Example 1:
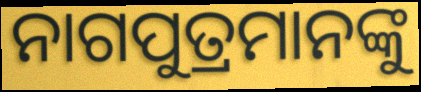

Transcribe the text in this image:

ନାଗପୁତ୍ରମାନଙ୍କୁ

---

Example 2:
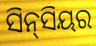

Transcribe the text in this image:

ସିନ୍‌ସିୟର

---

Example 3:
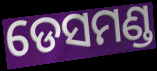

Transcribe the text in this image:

ଡେସମଣ୍ଡ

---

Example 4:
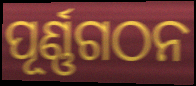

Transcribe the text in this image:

ପୂର୍ଣ୍ଣଗଠନ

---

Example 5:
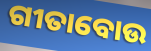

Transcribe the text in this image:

ଗୀତାବୋଉ